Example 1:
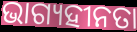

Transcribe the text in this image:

ଭାଗ୍ୟହୀନତା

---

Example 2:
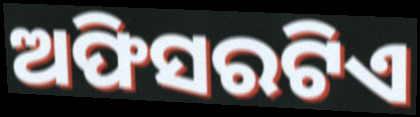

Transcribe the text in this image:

ଅଫିସରଟିଏ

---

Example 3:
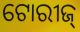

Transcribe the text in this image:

ଟୋରୀଜ୍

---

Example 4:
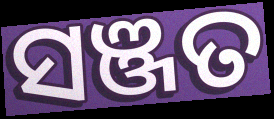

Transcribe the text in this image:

ସଞ୍ଜତ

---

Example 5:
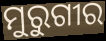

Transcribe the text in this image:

ମୁରୁଗୀର